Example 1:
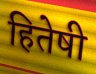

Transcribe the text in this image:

हितेषी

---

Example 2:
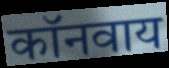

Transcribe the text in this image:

कॉनवाय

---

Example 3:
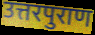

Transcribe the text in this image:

उत्तरपुराण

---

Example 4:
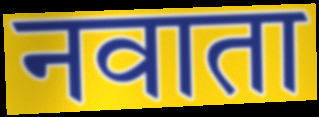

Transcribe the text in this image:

नवाता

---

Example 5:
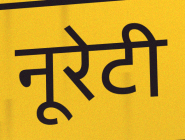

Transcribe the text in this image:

नूरेटी